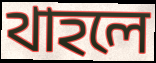
থাহলে